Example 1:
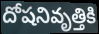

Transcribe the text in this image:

దోషనివృత్తికి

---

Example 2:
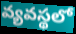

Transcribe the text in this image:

వ్యవస్థలో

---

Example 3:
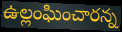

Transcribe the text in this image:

ఉల్లంఘించారన్న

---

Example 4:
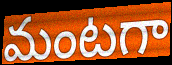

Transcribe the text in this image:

మంటగా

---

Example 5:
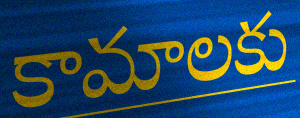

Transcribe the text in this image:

కామాలకు